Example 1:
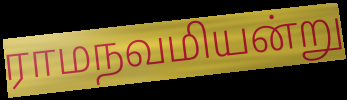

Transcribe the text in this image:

ராமநவமியன்று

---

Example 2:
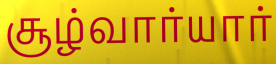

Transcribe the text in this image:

சூழ்வார்யார்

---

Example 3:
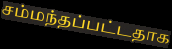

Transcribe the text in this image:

சம்மந்தப்பட்டதாக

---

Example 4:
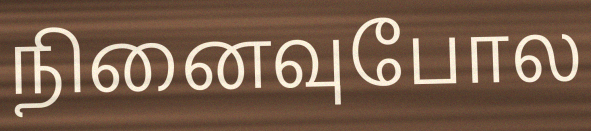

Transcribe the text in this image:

நினைவுபோல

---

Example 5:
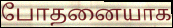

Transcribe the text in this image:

போதனையாக